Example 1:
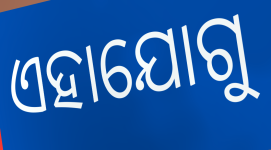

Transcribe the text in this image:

ଏହାଯୋଗୁ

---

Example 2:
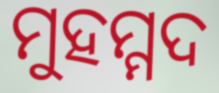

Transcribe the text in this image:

ମୁହମ୍ମଦ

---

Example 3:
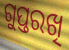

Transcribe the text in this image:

ଗୁପ୍ତରଖି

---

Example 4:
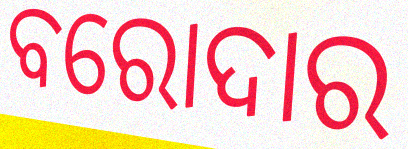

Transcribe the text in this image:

ବରୋଦାର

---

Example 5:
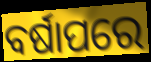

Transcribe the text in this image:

ବର୍ଷାପରେ